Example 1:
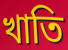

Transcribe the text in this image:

খাতি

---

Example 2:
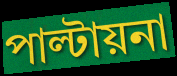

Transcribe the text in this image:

পাল্টায়না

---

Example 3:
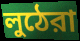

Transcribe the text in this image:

লুঠেরা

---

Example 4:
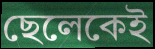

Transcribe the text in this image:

ছেলেকেই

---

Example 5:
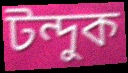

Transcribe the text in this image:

টন্দুক